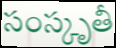
సంస్కృతీ